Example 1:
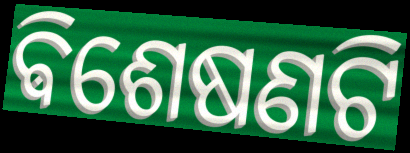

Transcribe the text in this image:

ଵିଶେଷଣଟି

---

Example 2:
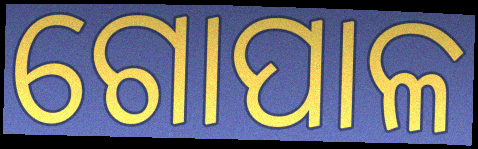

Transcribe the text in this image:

ଗୋପାଳ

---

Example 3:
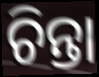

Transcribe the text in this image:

ଚିନ୍ତା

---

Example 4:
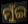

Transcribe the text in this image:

ମୁଁଇ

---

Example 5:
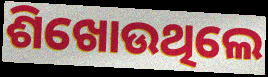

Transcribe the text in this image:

ଶିଖୋଉଥିଲେ